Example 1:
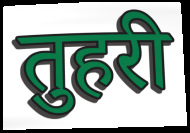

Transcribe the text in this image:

तुहरी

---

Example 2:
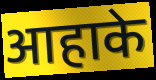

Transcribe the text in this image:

आहाके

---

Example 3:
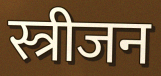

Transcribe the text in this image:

स्त्रीजन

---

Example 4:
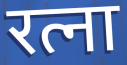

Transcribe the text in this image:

रत्ना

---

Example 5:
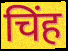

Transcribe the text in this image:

चिंह